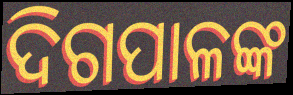
ଦିଗପାଳଙ୍କ